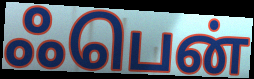
ஃபென்